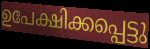
ഉപേക്ഷിക്കപ്പെട്ടു